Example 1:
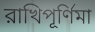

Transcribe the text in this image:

রাখিপূর্ণিমা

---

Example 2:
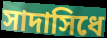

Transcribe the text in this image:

সাদাসিধে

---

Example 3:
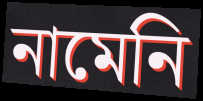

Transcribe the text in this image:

নামেনি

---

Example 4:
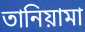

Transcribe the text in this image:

তানিয়ামা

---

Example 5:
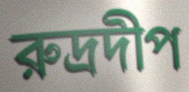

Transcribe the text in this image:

রুদ্রদীপ